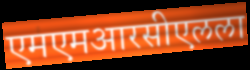
एमएमआरसीएलला